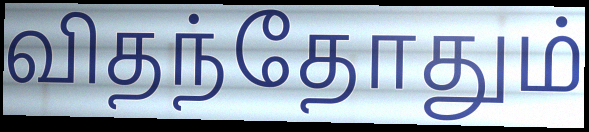
விதந்தோதும்